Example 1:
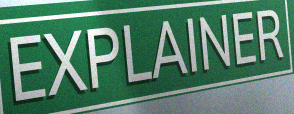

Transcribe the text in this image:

EXPLAINER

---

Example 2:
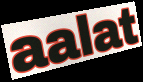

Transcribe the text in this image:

aalat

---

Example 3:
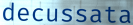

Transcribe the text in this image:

decussata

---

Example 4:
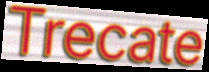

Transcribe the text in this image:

Trecate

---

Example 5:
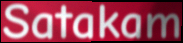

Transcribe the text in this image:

Satakam